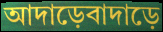
আদাড়েবাদাড়ে